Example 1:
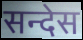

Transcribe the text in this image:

सन्देस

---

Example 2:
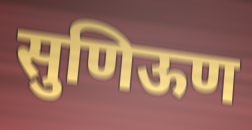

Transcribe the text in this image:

सुणिऊण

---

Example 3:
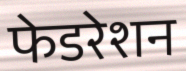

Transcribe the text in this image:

फेडरेशन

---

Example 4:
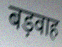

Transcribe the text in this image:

बड़वाह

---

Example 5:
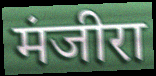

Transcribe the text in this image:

मंजीरा